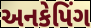
અનકેપિંગ